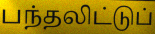
பந்தலிட்டுப்